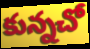
కున్నచో